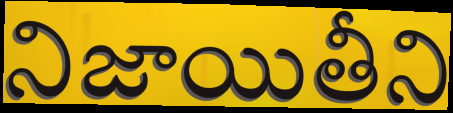
నిజాయితీని